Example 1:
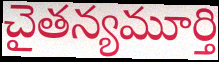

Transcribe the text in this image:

చైతన్యమూర్తి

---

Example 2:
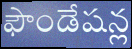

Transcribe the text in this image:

ఫౌండేషన్ల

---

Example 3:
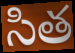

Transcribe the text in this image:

సిత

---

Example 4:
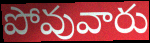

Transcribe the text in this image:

పోవువారు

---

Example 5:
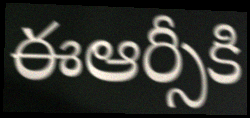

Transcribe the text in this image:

ఈఆర్సీకి